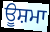
ਊਸ਼ਮਾ